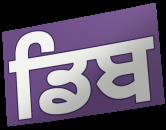
ਡਿਬ